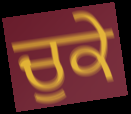
ਚੁਕੇ